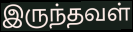
இருந்தவள்